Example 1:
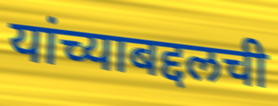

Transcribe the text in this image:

यांच्याबद्दलची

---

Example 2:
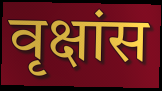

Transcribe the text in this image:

वृक्षांस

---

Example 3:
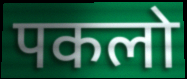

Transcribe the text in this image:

पकलो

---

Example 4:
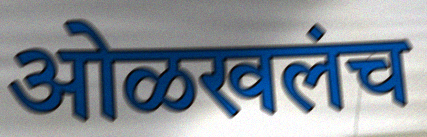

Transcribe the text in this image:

ओळखलंच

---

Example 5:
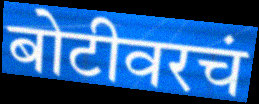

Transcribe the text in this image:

बोटीवरचं